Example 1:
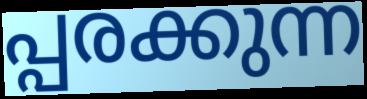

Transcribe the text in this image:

പ്പരക്കുന്ന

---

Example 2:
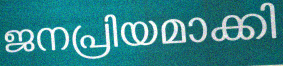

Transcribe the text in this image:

ജനപ്രിയമാക്കി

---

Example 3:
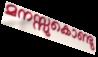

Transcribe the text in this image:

മനസ്സുകൊണ്ടു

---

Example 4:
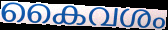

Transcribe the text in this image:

കൈവശം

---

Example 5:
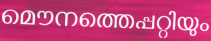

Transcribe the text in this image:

മൌനത്തെപ്പറ്റിയും